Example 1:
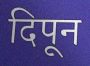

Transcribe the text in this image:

दिपून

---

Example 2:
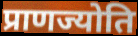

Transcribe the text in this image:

प्राणज्योति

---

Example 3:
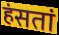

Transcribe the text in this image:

हंसतां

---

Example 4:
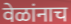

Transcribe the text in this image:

वेळांनाच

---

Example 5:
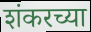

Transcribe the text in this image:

शंकरच्या